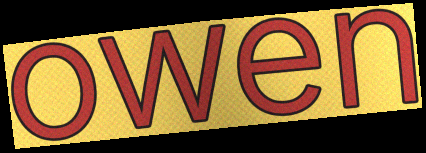
owen